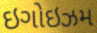
ઇગોઇઝમ